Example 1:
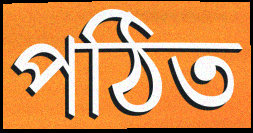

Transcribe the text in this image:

পঠিত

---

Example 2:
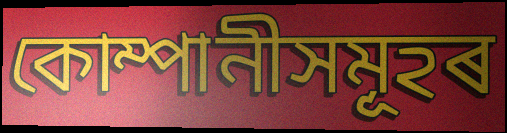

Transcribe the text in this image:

কোম্পানীসমূহৰ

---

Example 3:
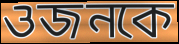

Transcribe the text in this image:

ওজনকে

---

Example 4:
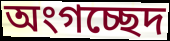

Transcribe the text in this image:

অংগচ্ছেদ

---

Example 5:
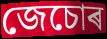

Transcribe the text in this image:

জেচোৰ